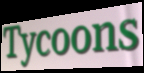
Tycoons